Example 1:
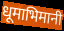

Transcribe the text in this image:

धूमाभिमानी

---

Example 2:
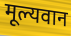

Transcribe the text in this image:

मूल्यवान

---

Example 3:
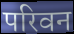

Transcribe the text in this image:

परिवन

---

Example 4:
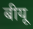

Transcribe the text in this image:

बीयू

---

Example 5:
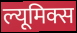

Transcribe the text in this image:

ल्यूमिक्स